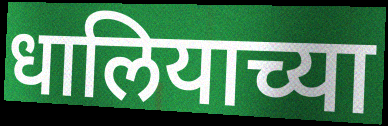
धालियाच्या